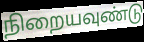
நிறையவுண்டு